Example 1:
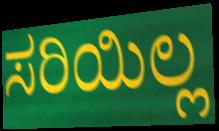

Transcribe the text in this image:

ಸರಿಯಿಲ್ಲ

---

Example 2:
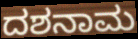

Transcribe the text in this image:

ದಶನಾಮ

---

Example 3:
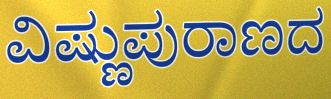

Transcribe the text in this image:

ವಿಷ್ಣುಪುರಾಣದ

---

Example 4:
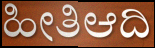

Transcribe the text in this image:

ಹೀತಿಆದಿ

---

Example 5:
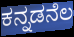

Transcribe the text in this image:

ಕನ್ನಡನೆಲ